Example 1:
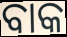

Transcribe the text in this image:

ବାକ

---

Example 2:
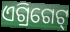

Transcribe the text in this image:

ଏଗ୍ରିଗେଟ୍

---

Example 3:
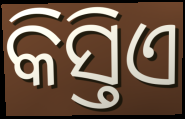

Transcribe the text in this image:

କିସ୍ତିଏ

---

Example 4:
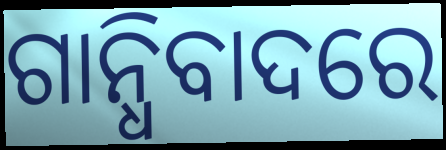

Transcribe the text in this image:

ଗାନ୍ଧିବାଦରେ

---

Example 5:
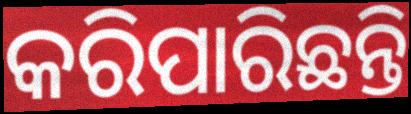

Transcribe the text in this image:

କରିପାରିଛନ୍ତି